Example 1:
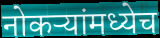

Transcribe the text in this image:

नोकऱ्यांमध्येच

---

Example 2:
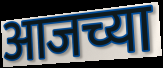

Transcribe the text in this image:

आजच्या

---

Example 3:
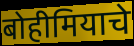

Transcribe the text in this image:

बोहीमियाचे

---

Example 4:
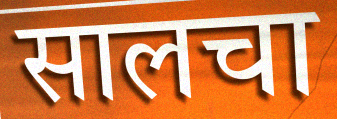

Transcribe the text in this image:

सालचा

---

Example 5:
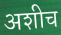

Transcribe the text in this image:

अशीच